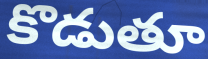
కొడుతూ